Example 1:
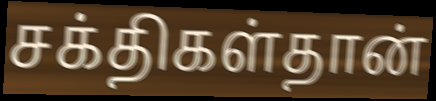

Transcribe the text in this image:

சக்திகள்தான்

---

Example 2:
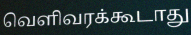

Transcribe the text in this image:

வெளிவரக்கூடாது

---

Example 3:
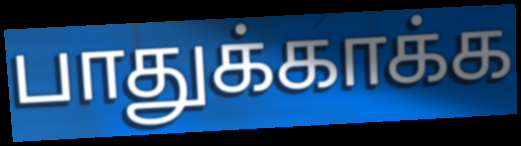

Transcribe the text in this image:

பாதுக்காக்க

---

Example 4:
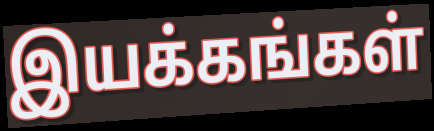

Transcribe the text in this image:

இயக்கங்கள்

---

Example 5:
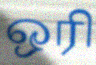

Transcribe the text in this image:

ஒரி